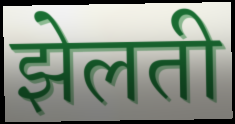
झेलती